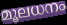
മൂലധനം